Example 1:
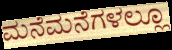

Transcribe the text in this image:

ಮನೆಮನೆಗಳಲ್ಲೂ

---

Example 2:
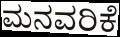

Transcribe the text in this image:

ಮನವರಿಕೆ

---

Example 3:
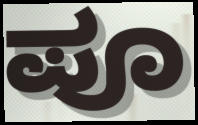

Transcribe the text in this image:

ಪೂ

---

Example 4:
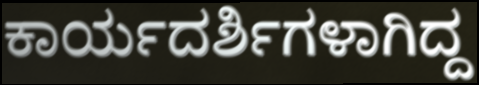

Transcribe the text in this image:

ಕಾರ್ಯದರ್ಶಿಗಳಾಗಿದ್ದ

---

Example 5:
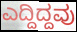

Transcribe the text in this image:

ಎದ್ದಿದ್ದವು